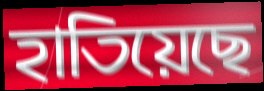
হাতিয়েছে